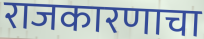
राजकारणाचा